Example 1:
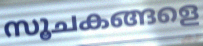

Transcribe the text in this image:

സൂചകങ്ങളെ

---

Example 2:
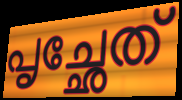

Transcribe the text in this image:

പൃച്ഛേത്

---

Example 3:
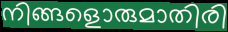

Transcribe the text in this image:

നിങ്ങളൊരുമാതിരി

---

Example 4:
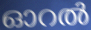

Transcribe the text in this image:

ഓറൽ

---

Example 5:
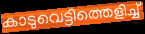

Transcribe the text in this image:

കാടുവെട്ടിത്തെളിച്ച്